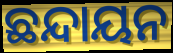
ଛନ୍ଦାୟନ